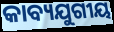
କାବ୍ୟଯୁଗୀୟ